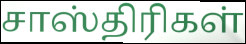
சாஸ்திரிகள்